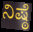
ನಿಷ್ಠೆ